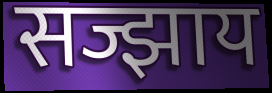
सज्झाय